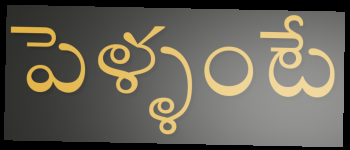
పెళ్ళంటే